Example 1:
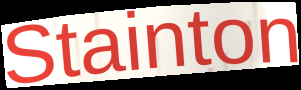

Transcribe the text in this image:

Stainton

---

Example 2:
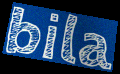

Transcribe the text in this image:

bila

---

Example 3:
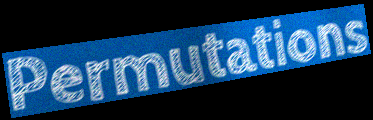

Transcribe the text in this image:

Permutations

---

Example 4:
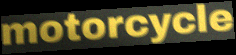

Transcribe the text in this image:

motorcycle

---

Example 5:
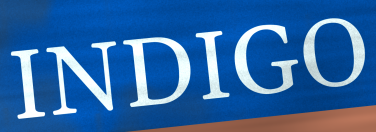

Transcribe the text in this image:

INDIGO